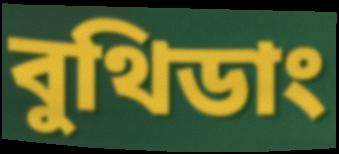
বুথিডাং